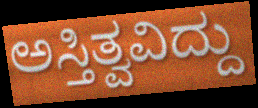
ಅಸ್ತಿತ್ವವಿದ್ದು